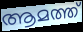
ആമത്ത്